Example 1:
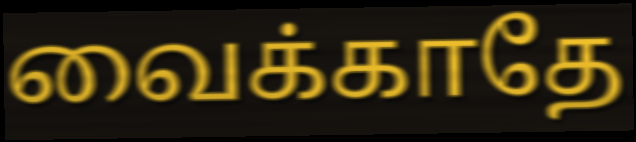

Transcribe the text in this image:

வைக்காதே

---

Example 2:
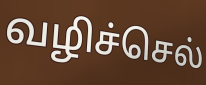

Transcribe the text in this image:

வழிச்செல்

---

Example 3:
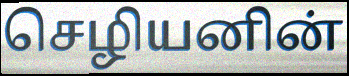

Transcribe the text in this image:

செழியனின்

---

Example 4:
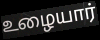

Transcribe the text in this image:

உழையார்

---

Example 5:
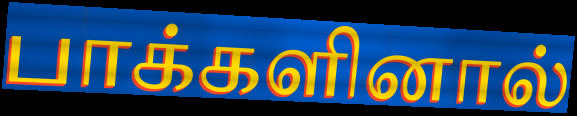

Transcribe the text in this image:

பாக்களினால்